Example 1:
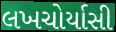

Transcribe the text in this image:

લખચોર્યાસી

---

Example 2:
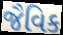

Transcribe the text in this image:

જૈવિક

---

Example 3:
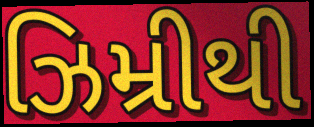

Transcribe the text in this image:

ઝિમ્રીથી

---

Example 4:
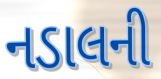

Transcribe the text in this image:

નડાલની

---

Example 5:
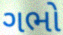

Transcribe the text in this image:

ગભો